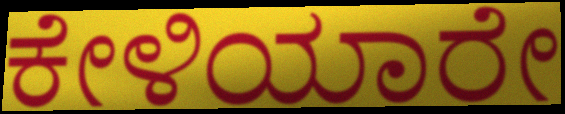
ಕೇಳಿಯಾರೇ